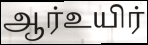
ஆர்உயிர்